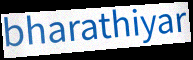
bharathiyar